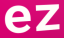
ez